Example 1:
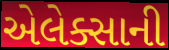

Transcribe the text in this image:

એલેક્સાની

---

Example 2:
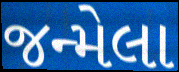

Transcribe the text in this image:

જન્મેલા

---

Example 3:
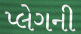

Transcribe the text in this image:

પ્લેગની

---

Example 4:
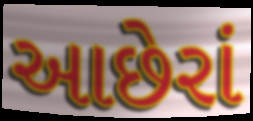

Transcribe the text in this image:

આછેરાં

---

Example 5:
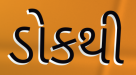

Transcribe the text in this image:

ડોકથી